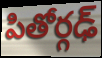
పితోర్గఢ్